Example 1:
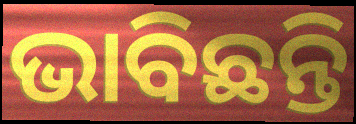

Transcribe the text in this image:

ଭାବିଛନ୍ତି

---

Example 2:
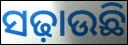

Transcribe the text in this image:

ସଢ଼ାଉଛି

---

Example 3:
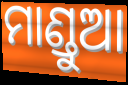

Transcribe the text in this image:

ମାଣ୍ଡୁଆ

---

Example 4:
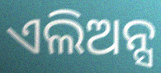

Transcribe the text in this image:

ଏଲିଅନ୍ସ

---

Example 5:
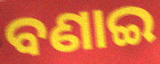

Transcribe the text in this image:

ବଣାଇ